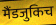
मैंडजुकिच